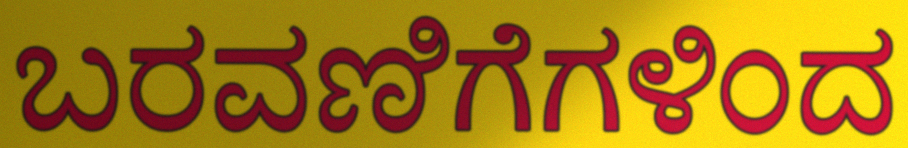
ಬರವಣಿಗೆಗಳಿಂದ